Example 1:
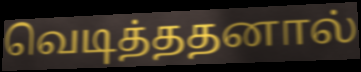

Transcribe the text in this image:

வெடித்ததனால்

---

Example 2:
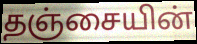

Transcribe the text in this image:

தஞ்சையின்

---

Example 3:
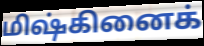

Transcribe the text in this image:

மிஷ்கினைக்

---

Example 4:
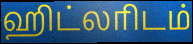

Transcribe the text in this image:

ஹிட்லரிடம்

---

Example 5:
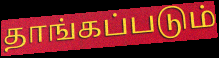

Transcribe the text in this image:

தாங்கப்படும்